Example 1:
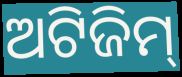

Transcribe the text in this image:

ଅଟିଜିମ୍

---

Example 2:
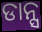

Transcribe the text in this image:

ଡାନ୍ସ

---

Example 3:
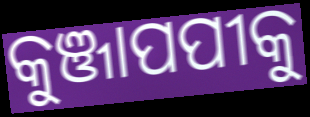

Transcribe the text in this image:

କୁଞ୍ଜାପପୀକୁ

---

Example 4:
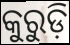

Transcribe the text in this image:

କୁରୁଡ଼ି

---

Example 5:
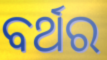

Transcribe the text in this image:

ବର୍ଥର